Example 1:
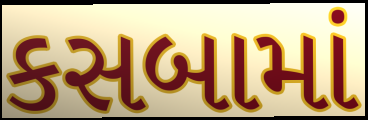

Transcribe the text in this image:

કસબામાં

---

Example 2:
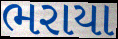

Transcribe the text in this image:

ભરાયા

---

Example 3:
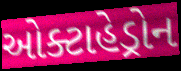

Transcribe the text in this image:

ઓક્ટાહેડ્રોન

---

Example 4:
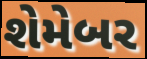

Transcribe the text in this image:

શેમેબર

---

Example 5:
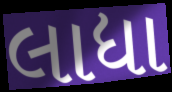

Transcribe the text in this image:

લાદ્યા